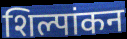
शिल्पांकन